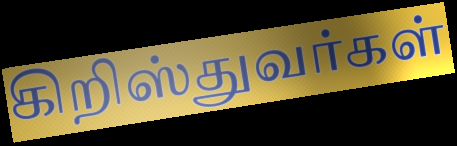
கிறிஸ்துவர்கள்